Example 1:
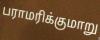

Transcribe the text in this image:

பராமரிக்குமாறு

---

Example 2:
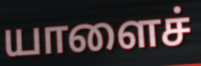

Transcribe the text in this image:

யாளைச்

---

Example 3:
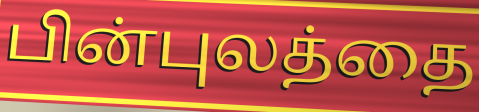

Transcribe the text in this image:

பின்புலத்தை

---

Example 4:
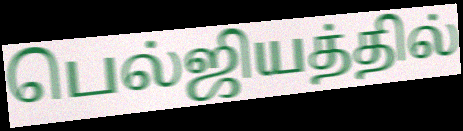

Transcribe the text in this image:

பெல்ஜியத்தில்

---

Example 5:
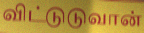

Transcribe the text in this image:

விட்டுடுவான்